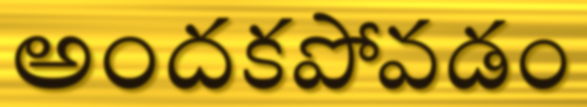
అందకపోవడం